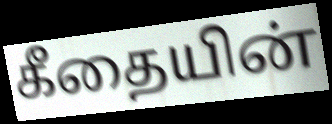
கீதையின்